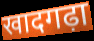
खादगढ़ा